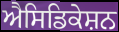
ਐਸਿਡਿਕੇਸ਼ਨ